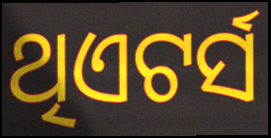
ଥିଏଟର୍ସ